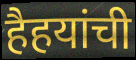
हैहयांची